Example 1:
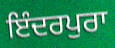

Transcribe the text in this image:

ਇੰਦਰਪੁਰਾ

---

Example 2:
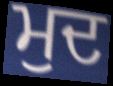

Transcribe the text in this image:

ਮੁਦ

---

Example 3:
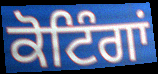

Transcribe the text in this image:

ਕੋਟਿੰਗਾਂ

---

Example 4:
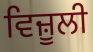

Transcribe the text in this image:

ਵਿਜ਼ੂਲੀ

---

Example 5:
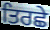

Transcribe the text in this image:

ਤਿਰਛੇ